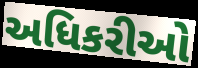
અધિકરીઓ